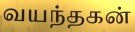
வயந்தகன்